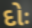
દોઃ